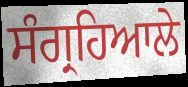
ਸੰਗ੍ਰਹਿਆਲੇ